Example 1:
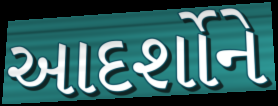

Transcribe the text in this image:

આદર્શોને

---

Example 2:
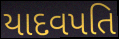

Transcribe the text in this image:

યાદવપતિ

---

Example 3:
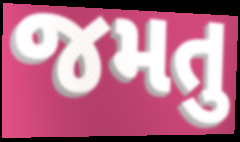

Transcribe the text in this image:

જમતુ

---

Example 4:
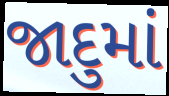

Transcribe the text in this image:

જાદુમાં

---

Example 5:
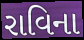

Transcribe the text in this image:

રાવિના